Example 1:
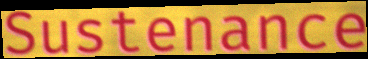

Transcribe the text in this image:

Sustenance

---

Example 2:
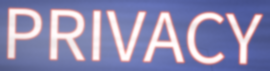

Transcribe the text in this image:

PRIVACY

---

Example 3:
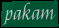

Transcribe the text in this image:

pakam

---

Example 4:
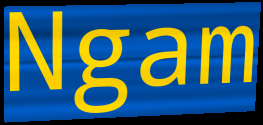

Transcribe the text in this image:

Ngam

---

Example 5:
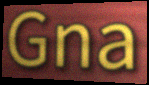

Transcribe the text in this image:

Gna